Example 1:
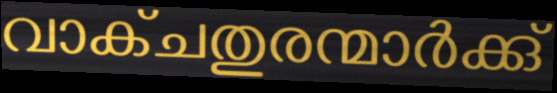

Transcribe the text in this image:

വാക്ചതുരന്മാർക്കു്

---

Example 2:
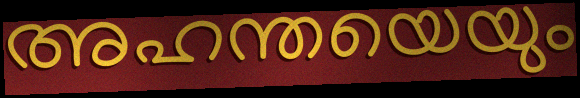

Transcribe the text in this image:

അഹന്തയെയും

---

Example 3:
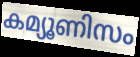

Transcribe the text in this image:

കമ്യൂണിസം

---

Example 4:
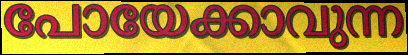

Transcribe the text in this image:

പോയേക്കാവുന്ന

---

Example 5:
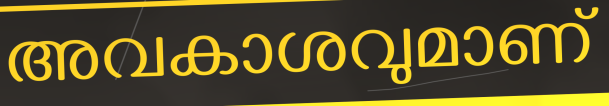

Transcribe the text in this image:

അവകാശവുമാണ്